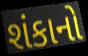
શંકાનો